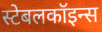
स्टेबलकॉइन्स